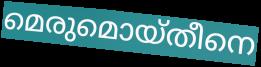
മെരുമൊയ്തീനെ